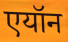
एयॉन